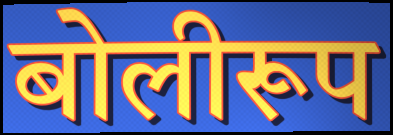
बोलीरूप